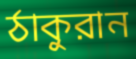
ঠাকুরান